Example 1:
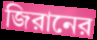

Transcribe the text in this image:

জিরানের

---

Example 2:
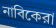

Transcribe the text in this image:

নাবিকেরা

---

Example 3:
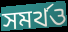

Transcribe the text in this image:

সমর্থও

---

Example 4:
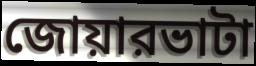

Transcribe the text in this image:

জোয়ারভাটা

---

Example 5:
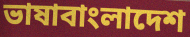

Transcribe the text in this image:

ভাষাবাংলাদেশ